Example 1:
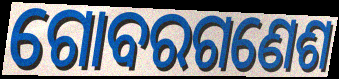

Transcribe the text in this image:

ଗୋବରଗଣେଶ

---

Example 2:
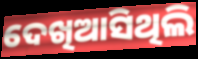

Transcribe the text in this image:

ଦେଖିଆସିଥିଲି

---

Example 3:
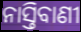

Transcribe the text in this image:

ନାସ୍ତିବାଣୀ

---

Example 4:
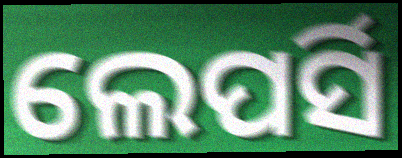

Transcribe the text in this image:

ଲେପର୍ସି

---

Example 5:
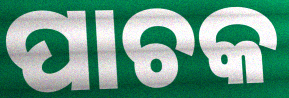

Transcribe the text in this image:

ପାଚକ